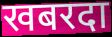
खबरदा